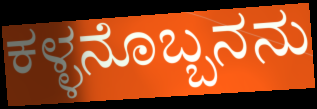
ಕಳ್ಳನೊಬ್ಬನನು